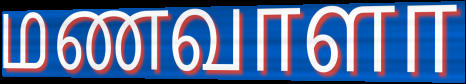
மணவாளா